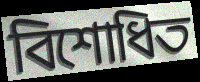
বিশোধিত